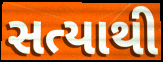
સત્યાથી